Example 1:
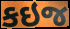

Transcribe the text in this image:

કઇજ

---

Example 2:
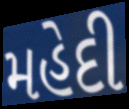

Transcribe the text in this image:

મહેદી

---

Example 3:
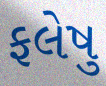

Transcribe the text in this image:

ફલેષુ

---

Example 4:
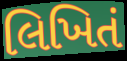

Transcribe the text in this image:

લિખિતં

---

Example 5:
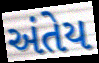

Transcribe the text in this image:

અંતેય